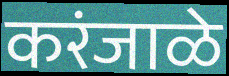
करंजाळे